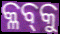
କ୍ଳବ୍‌କୁ